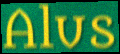
Alus